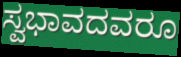
ಸ್ವಭಾವದವರೂ